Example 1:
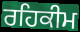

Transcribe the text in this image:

ਰਹਿਕੀਮ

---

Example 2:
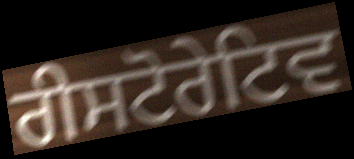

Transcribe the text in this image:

ਰੀਸਟੋਰੇਟਿਵ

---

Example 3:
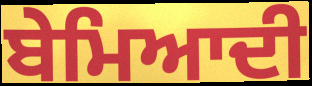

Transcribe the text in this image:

ਬੇਮਿਆਦੀ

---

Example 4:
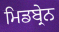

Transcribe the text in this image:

ਮਿਡਬ੍ਰੇਨ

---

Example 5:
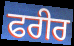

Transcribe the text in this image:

ਫਰੀਰ